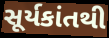
સૂર્યકાંતથી